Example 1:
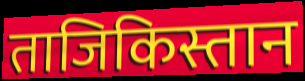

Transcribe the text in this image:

ताजिकिस्तान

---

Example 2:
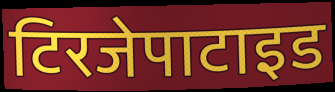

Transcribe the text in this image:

टिरजेपाटाइड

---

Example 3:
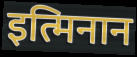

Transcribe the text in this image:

इत्मिनान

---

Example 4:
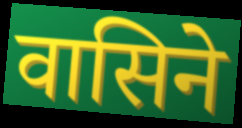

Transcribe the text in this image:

वासिने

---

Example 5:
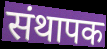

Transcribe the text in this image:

संथापक